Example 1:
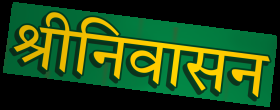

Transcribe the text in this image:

श्रीनिवासन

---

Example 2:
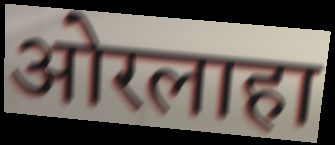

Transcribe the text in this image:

ओरलाहा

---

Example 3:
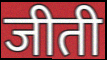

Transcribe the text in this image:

जीती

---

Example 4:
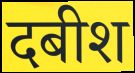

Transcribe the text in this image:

दबीश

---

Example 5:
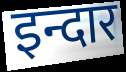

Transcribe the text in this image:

इन्दार